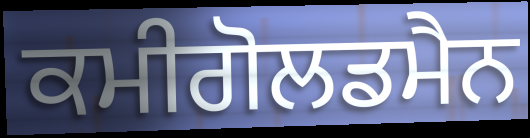
ਕਮੀਗੋਲਡਮੈਨ